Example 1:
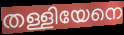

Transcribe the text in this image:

തള്ളിയേനെ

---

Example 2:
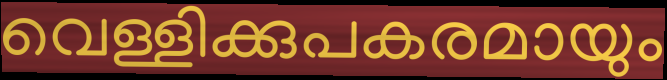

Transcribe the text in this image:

വെള്ളിക്കുപകരമായും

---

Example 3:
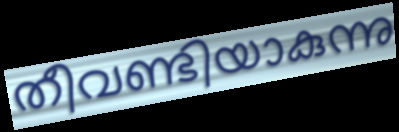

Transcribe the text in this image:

തീവണ്ടിയാകുന്നു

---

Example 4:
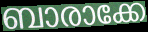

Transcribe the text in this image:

ബാരാക്കേ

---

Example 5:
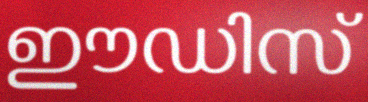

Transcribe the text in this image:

ഈഡിസ്